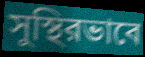
সুস্থিরভাবে